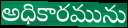
అధికారమును